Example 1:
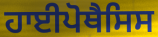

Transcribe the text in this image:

ਹਾਈਪੋਥੈਸਿਸ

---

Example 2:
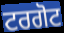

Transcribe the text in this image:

ਟਰਗੋਟ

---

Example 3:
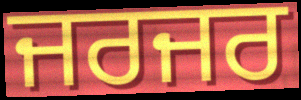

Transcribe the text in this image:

ਜਰਜਰ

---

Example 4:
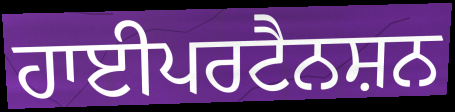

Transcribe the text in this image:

ਹਾਈਪਰਟੈਨਸ਼ਨ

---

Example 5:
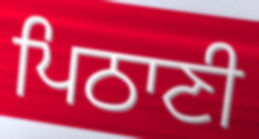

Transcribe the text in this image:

ਪਿਠਾਣੀ